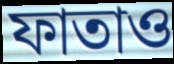
ফাতাও